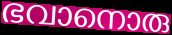
ഭവാനൊരു